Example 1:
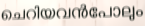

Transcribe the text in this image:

ചെറിയവൻപോലും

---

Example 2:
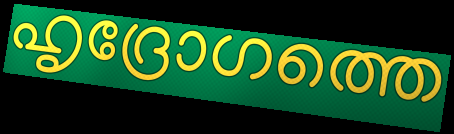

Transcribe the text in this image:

ഹൃദ്രോഗത്തെ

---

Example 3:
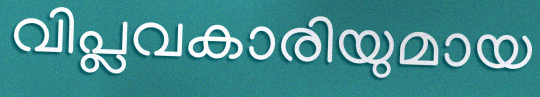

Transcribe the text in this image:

വിപ്ലവകാരിയുമായ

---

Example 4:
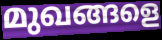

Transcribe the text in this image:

മുഖങ്ങളെ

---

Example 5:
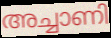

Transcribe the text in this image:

അച്ചാണി